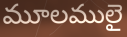
మూలములై